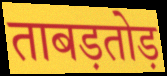
ताबड़तोड़